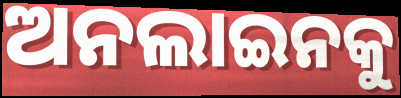
ଅନଲାଇନକୁ